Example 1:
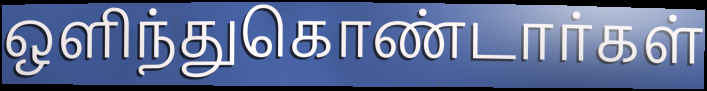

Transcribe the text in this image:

ஒளிந்துகொண்டார்கள்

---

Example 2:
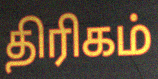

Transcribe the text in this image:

திரிகம்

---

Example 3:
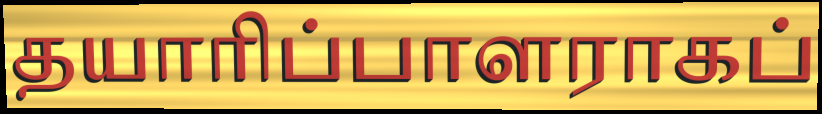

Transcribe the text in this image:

தயாரிப்பாளராகப்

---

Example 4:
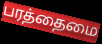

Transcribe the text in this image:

பரத்தைமை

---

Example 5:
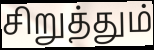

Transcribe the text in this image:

சிறுத்தும்